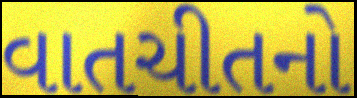
વાતચીતનો